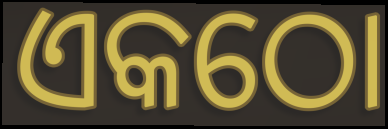
ଏକଠୋ